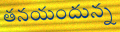
తనయందున్న